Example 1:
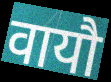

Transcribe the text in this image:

वायौ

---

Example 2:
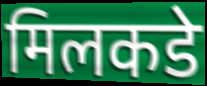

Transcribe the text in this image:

मिलकडे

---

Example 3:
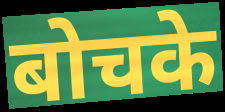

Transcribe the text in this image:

बोचके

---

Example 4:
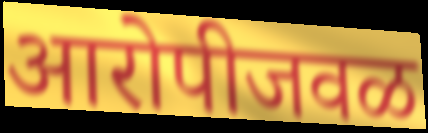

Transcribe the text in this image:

आरोपीजवळ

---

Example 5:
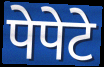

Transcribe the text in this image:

पेपेटे